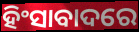
ହିଂସାବାଦରେ